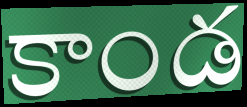
కాండ